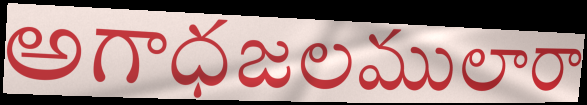
అగాధజలములారా